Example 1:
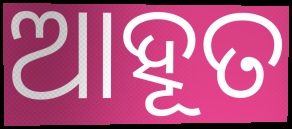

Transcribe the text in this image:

ଆହୂତ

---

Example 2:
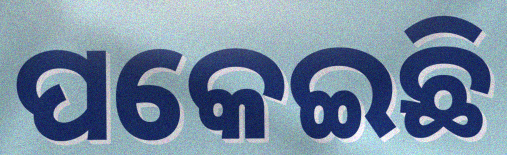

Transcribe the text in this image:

ପକେଇଛି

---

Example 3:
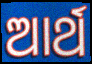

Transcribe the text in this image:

ଆର୍ଥ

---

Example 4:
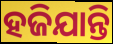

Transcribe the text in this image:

ହଜିଯାନ୍ତି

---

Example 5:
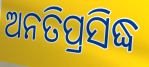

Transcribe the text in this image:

ଅନତିପ୍ରସିଦ୍ଧ